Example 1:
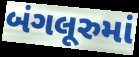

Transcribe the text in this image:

બંગલૂરુમાં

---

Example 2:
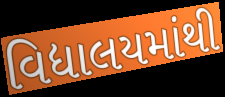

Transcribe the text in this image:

વિદ્યાલયમાંથી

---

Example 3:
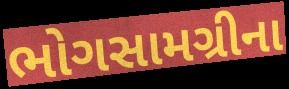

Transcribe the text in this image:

ભોગસામગ્રીના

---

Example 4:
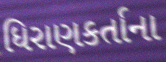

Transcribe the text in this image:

ધિરાણકર્તાના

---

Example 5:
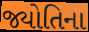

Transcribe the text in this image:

જ્યોતિના